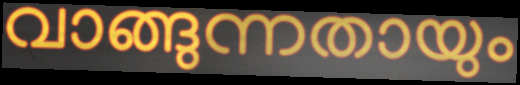
വാങ്ങുന്നതായും